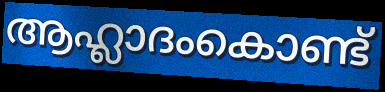
ആഹ്ലാദംകൊണ്ട്